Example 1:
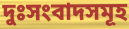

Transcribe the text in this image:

দুঃসংবাদসমূহ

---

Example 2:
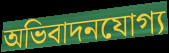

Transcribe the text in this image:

অভিবাদনযোগ্য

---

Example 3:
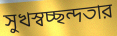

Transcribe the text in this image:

সুখস্বচ্ছন্দতার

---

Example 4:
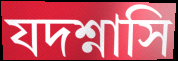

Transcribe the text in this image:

যদশ্নাসি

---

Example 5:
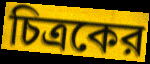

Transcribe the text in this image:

চিত্রকের